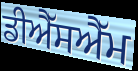
ਡੀਐੱਸਐੱਮ